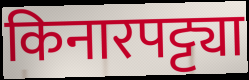
किनारपट्ट्या